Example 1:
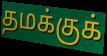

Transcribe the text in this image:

தமக்குக்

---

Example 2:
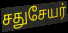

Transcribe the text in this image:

சதுசேயர்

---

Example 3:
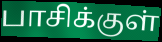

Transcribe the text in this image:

பாசிக்குள்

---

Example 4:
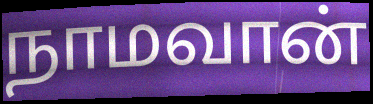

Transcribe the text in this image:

நாமவான்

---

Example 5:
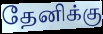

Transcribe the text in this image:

தேனிக்கு